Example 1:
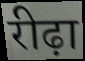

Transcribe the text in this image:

रीढ़ा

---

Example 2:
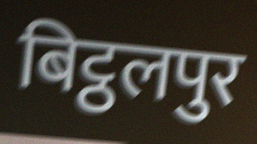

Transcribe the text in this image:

बिट्ठलपुर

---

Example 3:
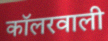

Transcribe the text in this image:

कॉलरवाली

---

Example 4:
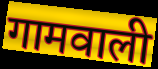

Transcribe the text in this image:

गामवाली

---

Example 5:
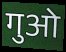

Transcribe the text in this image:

गुओ